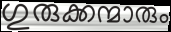
ഗുരുക്കന്മാരും